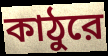
কাঠুরে